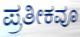
ಪ್ರತೀಕವೂ